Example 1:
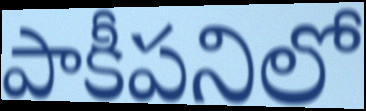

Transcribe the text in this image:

పాకీపనిలో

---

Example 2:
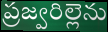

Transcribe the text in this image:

ప్రజ్వరిల్లెను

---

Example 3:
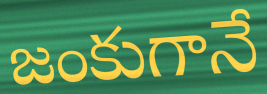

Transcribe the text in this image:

జంకుగానే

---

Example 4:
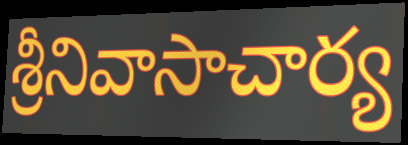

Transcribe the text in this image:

శ్రీనివాసాచార్య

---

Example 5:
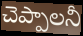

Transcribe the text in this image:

చెప్పాలనీ